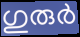
ഗുരുർ